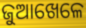
ଜୁଆଖେଳେ